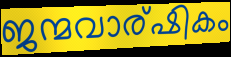
ജന്മവാര്ഷികം